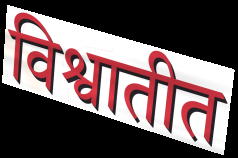
विश्वातीत